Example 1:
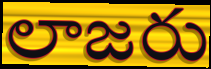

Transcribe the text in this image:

లాజరు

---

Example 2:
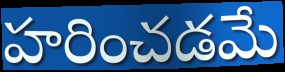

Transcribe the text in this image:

హరించడమే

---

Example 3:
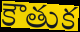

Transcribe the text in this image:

కౌతుక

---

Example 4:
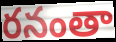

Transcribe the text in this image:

రనంతా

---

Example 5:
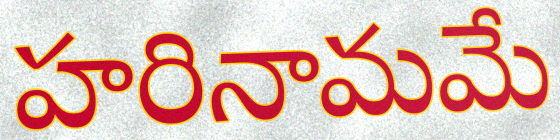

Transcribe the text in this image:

హరినామమే